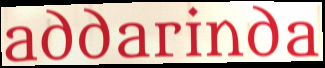
addarinda